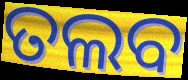
ତଲବ